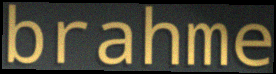
brahme